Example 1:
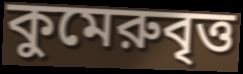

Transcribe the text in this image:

কুমেরুবৃত্ত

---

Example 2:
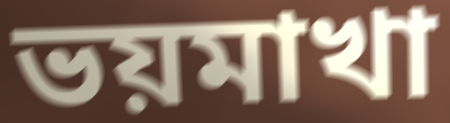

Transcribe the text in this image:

ভয়মাখা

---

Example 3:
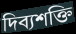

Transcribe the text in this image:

দিব্যশক্তি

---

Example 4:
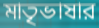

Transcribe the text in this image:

মাতৃভাষার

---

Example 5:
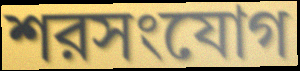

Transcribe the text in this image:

শরসংযোগ